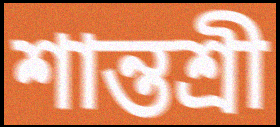
শান্তশ্রী